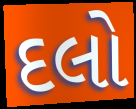
દલો